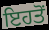
ਇਹਤੋਂ